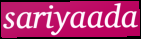
sariyaada